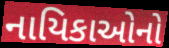
નાયિકાઓનો